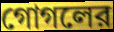
গোগলের